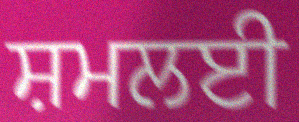
ਸ਼ਮਲਈ